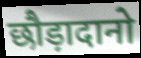
छौड़ादानो